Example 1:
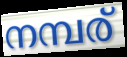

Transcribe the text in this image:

നമ്പര്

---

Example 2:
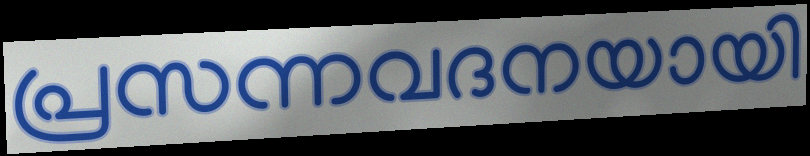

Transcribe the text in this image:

പ്രസന്നവദനയായി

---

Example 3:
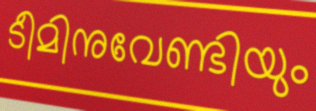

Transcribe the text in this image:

ടീമിനുവേണ്ടിയും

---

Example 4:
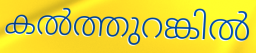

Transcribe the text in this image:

കൽത്തുറങ്കിൽ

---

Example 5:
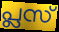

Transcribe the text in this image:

പ്ലസ്